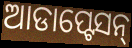
ଆଡାପ୍ଟେସନ୍